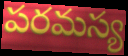
పరమస్య